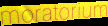
moratorium